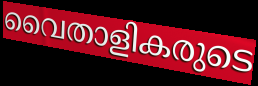
വൈതാളികരുടെ